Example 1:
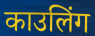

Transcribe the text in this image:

काउलिंग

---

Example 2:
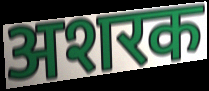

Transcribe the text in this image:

अशरक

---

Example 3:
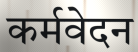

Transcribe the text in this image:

कर्मवेदन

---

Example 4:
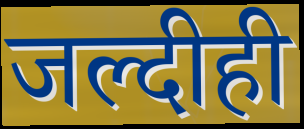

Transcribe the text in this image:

जल्दीही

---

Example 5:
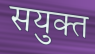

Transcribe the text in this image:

सयुक्‍त